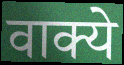
वाक्ये